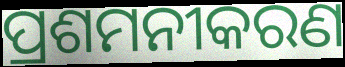
ପ୍ରଶମନୀକରଣ